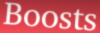
Boosts